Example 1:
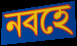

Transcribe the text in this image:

নবহে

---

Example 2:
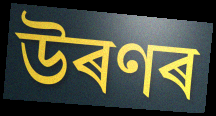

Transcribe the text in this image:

উৰণৰ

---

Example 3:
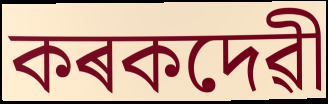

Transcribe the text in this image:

কৰকদেৱী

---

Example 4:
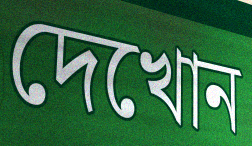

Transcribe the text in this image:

দেখোন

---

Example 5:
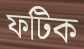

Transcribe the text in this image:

ফটিক